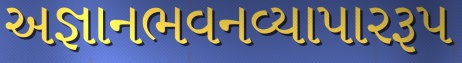
અજ્ઞાનભવનવ્યાપારરૂપ